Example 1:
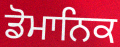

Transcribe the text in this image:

ਡੋਮਾਨਿਕ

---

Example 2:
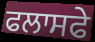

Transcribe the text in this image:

ਫਲਾਸਫੇ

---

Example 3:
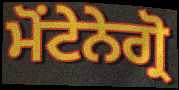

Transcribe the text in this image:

ਮੋਂਟੇਨੇਗ੍ਰੋ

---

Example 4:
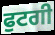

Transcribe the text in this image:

ਫੁਟਗੀ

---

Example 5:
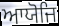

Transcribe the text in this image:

ਆਯੋਜਿ